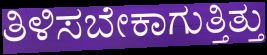
ತಿಳಿಸಬೇಕಾಗುತ್ತಿತ್ತು